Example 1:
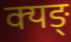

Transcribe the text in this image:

क्यङ्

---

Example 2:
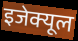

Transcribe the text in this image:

इजेक्यूल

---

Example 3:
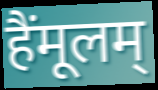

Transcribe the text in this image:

हैंमूलम्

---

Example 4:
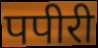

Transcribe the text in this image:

पपीरी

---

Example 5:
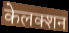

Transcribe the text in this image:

केलक्शन